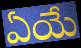
ఏయే